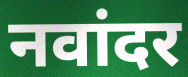
नवांदर